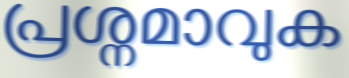
പ്രശ്നമാവുക